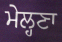
ਮੇਲ੍ਹਣਾ